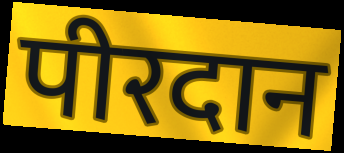
पीरदान